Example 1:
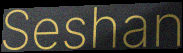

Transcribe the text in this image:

Seshan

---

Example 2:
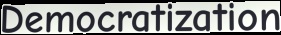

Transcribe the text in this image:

Democratization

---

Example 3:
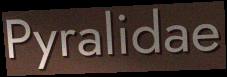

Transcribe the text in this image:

Pyralidae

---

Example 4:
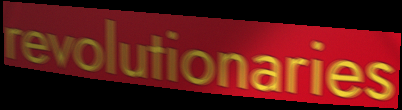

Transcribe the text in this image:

revolutionaries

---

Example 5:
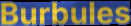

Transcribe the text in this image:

Burbules